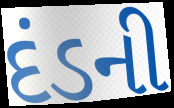
દંડની